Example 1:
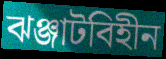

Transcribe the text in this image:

ঝঞ্জাটবিহীন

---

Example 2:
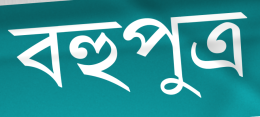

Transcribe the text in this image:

বহুপুত্র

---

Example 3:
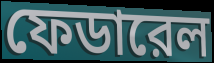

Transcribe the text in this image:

ফেডারেল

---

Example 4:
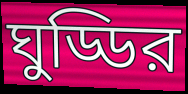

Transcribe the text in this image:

ঘুড্ডির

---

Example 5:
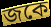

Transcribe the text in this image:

জকে